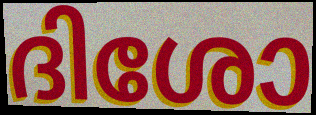
ദിശോ